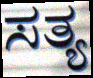
ಸತ್ಯ